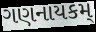
ગણનાયકમ્